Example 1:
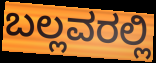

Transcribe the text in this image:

ಬಲ್ಲವರಲ್ಲಿ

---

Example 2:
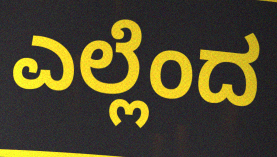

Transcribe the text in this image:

ಎಲ್ಲೆಂದ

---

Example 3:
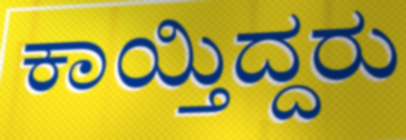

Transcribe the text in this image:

ಕಾಯ್ತಿದ್ದರು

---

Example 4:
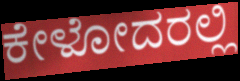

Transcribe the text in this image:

ಕೇಳೋದರಲ್ಲಿ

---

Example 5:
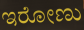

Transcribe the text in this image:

ಇರೋಣು